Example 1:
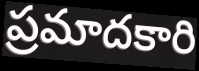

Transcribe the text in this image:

ప్రమాదకారి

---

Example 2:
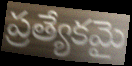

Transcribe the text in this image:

ప్రత్యేకమై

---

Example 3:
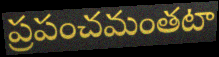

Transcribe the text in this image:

ప్రపంచమంతటా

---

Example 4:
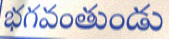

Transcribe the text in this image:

భగవంతుండు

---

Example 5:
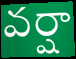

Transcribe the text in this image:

వర్షా